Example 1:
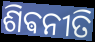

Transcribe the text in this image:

ଶିଵନୀତି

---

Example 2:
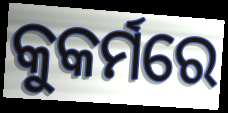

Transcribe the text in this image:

କୁକର୍ମରେ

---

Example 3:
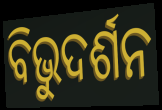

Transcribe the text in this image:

ବିଭୁଦର୍ଶନ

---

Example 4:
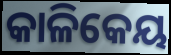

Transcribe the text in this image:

କାଳିକେୟ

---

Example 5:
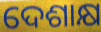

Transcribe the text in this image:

ଦେଶାକ୍ଷ